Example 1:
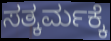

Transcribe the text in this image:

ಸತ್ಕರ್ಮಕ್ಕೆ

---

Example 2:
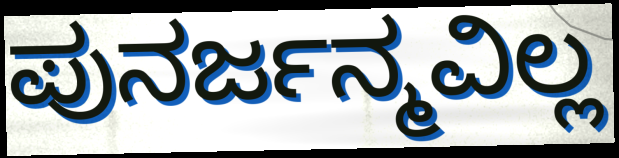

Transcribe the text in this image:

ಪುನರ್ಜನ್ಮವಿಲ್ಲ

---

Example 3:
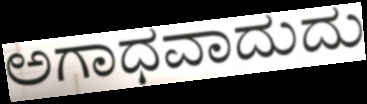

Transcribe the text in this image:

ಅಗಾಧವಾದುದು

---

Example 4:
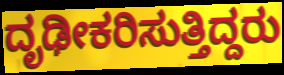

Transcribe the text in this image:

ದೃಢೀಕರಿಸುತ್ತಿದ್ದರು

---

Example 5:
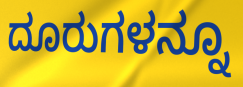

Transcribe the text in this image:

ದೂರುಗಳನ್ನೂ